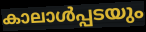
കാലാൾപ്പടയും